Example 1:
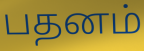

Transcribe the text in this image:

பதனம்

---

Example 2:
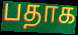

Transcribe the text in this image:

பதாக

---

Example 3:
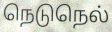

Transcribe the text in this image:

நெடுநெல்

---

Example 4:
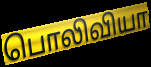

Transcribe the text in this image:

பொலிவியா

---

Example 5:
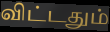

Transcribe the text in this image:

விட்டதும்